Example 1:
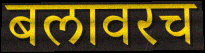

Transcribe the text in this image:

बलावरच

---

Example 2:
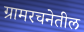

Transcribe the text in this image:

ग्रामरचनेतील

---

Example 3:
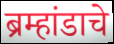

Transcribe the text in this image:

ब्रम्हांडाचे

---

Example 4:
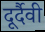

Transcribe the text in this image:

दूर्दैवी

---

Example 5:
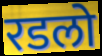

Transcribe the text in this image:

रडलो